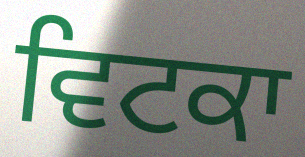
ਵਿਟਕਾ